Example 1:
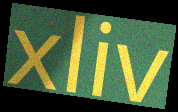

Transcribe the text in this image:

xliv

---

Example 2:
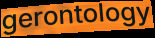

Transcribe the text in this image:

gerontology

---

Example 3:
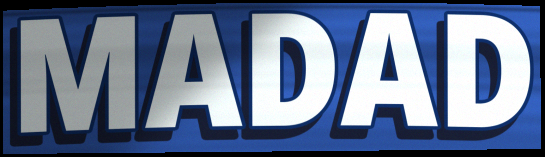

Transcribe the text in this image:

MADAD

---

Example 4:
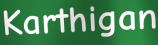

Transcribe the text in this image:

Karthigan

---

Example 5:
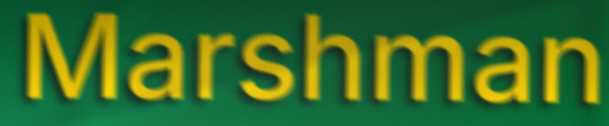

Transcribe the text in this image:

Marshman